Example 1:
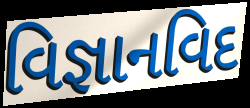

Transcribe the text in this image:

વિજ્ઞાનવિદ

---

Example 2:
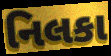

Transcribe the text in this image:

નિલકા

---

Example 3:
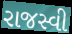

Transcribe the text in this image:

રાજસ્વી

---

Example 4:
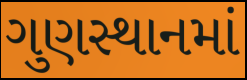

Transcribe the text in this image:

ગુણસ્થાનમાં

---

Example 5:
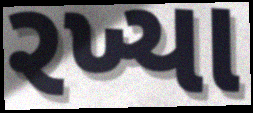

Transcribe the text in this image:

રખ્યા